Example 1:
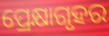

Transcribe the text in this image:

ପ୍ରେକ୍ଷାଗୃହର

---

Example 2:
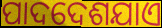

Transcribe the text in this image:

ପାଦଦେଶଯାଏ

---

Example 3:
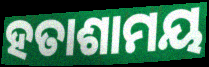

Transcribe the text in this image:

ହତାଶାମୟ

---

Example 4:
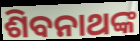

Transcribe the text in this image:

ଶିବନାଥଙ୍କ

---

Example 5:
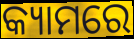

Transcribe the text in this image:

କ୍ୟାମରେ